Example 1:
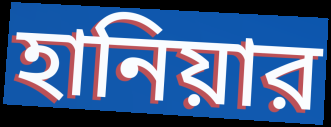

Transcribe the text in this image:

হানিয়ার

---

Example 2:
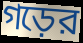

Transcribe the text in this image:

গড়ের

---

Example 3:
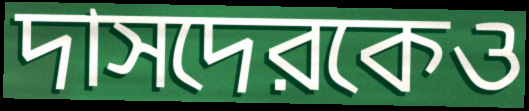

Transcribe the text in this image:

দাসদেরকেও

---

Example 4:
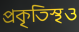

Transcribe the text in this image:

প্রকৃতিস্থও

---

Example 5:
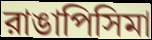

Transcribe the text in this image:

রাঙাপিসিমা